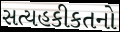
સત્યહકીકતનો